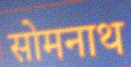
सोमनाथ